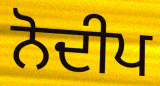
ਨੋਦੀਪ